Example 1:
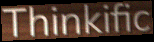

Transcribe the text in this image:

Thinkific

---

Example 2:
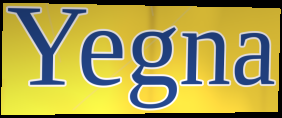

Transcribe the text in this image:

Yegna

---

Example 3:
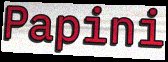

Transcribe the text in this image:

Papini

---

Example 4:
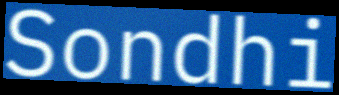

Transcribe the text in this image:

Sondhi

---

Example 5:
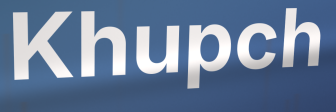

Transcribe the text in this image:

Khupch